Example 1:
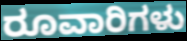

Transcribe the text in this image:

ರೂವಾರಿಗಳು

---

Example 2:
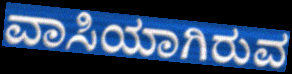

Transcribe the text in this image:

ವಾಸಿಯಾಗಿರುವ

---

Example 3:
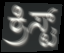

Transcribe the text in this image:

ಕ್ರಿಸ್ಟ್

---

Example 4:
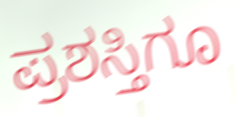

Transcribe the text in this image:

ಪ್ರಶಸ್ತಿಗೂ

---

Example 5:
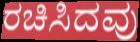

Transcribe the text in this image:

ರಚಿಸಿದವು